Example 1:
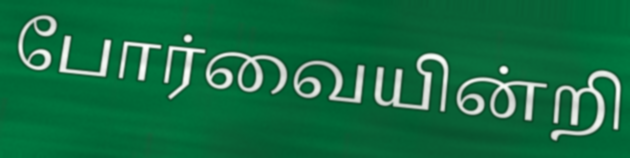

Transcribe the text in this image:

போர்வையின்றி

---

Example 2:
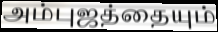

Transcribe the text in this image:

அம்புஜத்தையும்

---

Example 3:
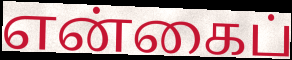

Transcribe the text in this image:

என்கைப்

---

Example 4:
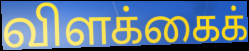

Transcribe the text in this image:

விளக்கைக்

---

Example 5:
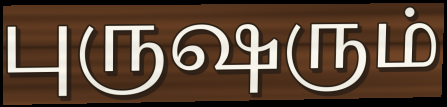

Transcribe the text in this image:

புருஷரும்